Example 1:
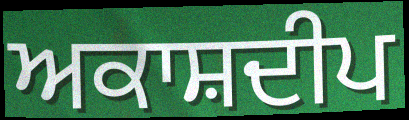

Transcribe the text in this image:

ਅਕਾਸ਼ਦੀਪ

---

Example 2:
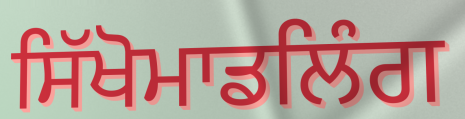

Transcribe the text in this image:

ਸਿੱਖੋਮਾਡਲਿੰਗ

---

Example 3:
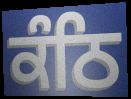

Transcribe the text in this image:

ਕੰਠਿ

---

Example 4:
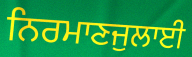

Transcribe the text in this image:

ਨਿਰਮਾਣਜੁਲਾਈ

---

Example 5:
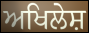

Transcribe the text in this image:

ਅਖਿਲੇਸ਼